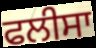
ਫਲੀਸਾ